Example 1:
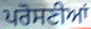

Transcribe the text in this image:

ਪਰੋਸਣੀਆਂ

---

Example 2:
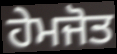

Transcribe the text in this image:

ਹੇਮਜੋਤ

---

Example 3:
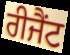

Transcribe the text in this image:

ਰੀਜੈਂਟ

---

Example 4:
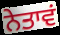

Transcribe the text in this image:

ਨੇਤਾਵਂ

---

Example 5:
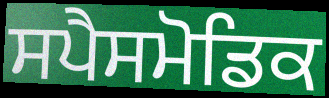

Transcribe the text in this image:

ਸਪੈਸਮੋਡਿਕ